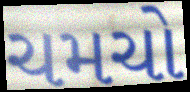
ચમચો